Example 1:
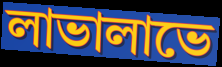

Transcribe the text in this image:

লাভালাভে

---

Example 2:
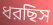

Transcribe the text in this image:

ধরছিস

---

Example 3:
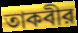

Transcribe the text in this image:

তাকবীর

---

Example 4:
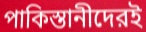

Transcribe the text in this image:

পাকিস্তানীদেরই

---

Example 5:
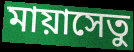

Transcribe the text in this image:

মায়াসেতু